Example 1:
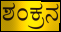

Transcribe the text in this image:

ಶಂಕ್ರನ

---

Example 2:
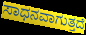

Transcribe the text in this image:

ಸಾಧನವಾಗುತ್ತದೆ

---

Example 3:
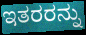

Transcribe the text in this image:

ಇತರರನ್ನು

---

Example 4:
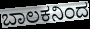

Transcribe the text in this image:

ಬಾಲಕನಿಂದ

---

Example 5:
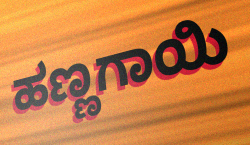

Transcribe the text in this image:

ಹಣ್ಣಗಾಯಿ